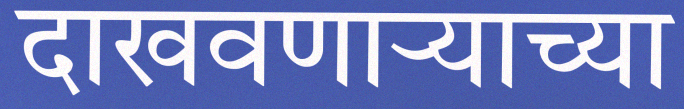
दाखवणाऱ्याच्या